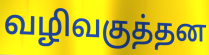
வழிவகுத்தன